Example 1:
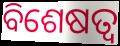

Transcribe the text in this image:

ବିଶେଷତ୍ଵ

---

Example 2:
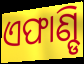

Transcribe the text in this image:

ଏଫାଣ୍ଡି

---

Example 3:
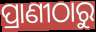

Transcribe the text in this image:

ପ୍ରାଣୀଠାରୁ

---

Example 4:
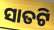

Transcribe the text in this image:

ସାତଟି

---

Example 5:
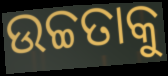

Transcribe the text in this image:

ଉଚ୍ଚତାକୁ